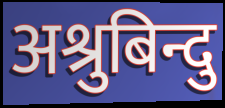
अश्रुबिन्दु